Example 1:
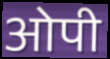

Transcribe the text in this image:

ओपी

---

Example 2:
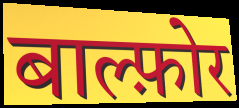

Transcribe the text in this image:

बाल्फ़ोर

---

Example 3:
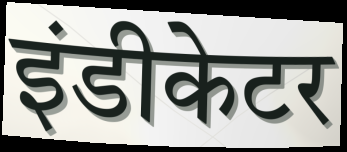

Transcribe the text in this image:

इंडीकेटर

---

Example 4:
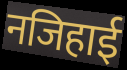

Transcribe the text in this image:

नजिहाई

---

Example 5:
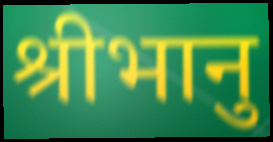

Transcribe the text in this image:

श्रीभानु